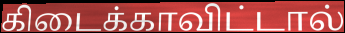
கிடைக்காவிட்டால்